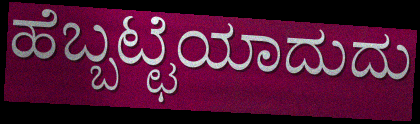
ಹೆಬ್ಬಟ್ಟೆಯಾದುದು